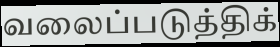
வலைப்படுத்திக்